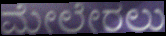
ಮೇಲೇರಲು